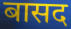
बासद